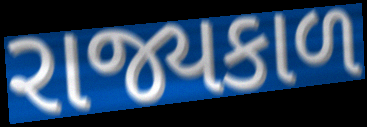
રાજ્યકાળ